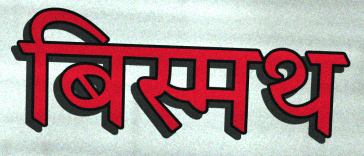
बिस्मथ